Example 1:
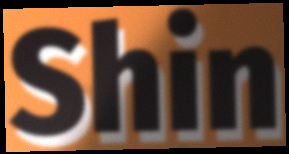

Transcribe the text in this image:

Shin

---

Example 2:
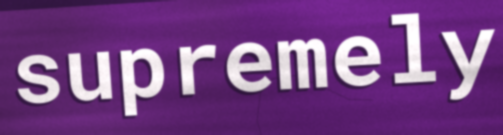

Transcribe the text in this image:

supremely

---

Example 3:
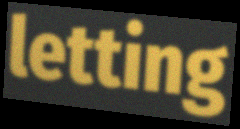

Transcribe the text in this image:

letting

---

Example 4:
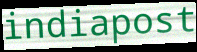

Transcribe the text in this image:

indiapost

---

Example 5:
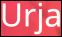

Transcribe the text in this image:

Urja